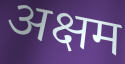
अक्षम